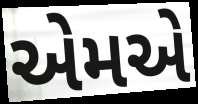
એમએ